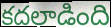
కదలాడింది